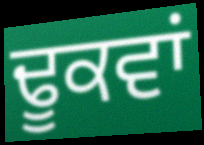
ਢੂਕਵਾਂ